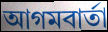
আগমবার্তা